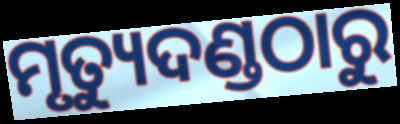
ମୃତ୍ୟୁଦଣ୍ଡଠାରୁ